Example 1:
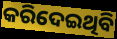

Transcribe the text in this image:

କରିଦେଇଥିବି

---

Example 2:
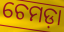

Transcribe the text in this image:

ଚେମଡ଼ା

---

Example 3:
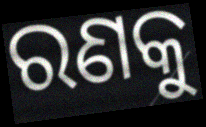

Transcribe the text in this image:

ରଣକୁ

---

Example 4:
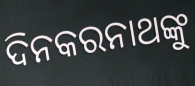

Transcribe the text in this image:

ଦିନକରନାଥଙ୍କୁ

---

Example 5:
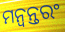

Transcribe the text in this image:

ମନ୍ବନ୍ତରଂ